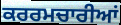
ਕਰਰਮਚਾਰੀਆਂ